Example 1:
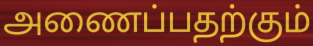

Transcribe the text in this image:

அணைப்பதற்கும்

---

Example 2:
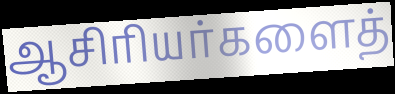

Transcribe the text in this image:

ஆசிரியர்களைத்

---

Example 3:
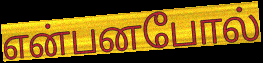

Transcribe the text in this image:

என்பனபோல்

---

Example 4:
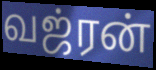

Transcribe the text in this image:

வஜ்ரன்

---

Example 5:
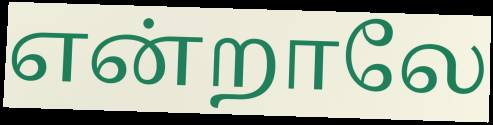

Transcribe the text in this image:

என்றாலே